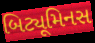
બિટ્યૂમિનસ